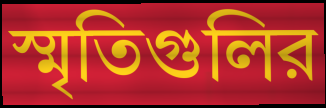
স্মৃতিগুলির